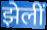
झेलीं